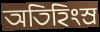
অতিহিংস্র